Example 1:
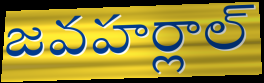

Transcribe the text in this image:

జవహర్లాల్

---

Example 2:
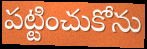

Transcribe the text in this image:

పట్టించుకోను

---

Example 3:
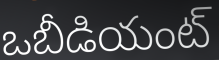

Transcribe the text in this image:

ఒబీడియంట్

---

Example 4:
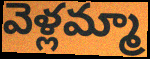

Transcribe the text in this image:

వెళ్లమ్మా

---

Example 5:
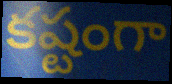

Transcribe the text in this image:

కష్టంగా